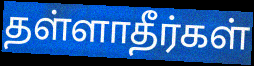
தள்ளாதீர்கள்